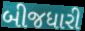
બીજધારી